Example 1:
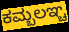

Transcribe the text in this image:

ಕಮ್ಬಲಞ್ಚ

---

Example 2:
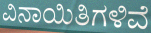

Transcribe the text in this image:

ವಿನಾಯಿತಿಗಳಿವೆ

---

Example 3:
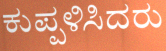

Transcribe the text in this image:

ಕುಪ್ಪಳಿಸಿದರು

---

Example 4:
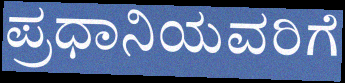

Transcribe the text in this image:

ಪ್ರಧಾನಿಯವರಿಗೆ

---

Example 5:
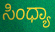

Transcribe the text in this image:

ಸಿಂಧ್ಯಾ